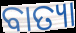
ବାତ୍ଯା